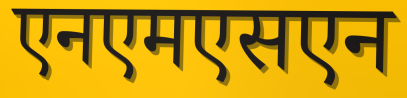
एनएमएसएन